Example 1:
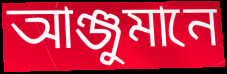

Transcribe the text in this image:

আঞ্জুমানে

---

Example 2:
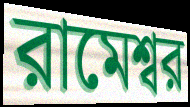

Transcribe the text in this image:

রামেশ্বর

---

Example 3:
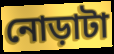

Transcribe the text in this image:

নোড়াটা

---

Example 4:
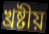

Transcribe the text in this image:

খ্রষ্টীয়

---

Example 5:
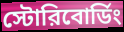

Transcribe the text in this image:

স্টোরিবোর্ডিং